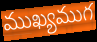
ముఖ్యముగ